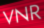
VNR